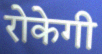
रोकेगी